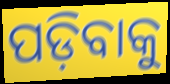
ପଡ଼ିବାକୁ